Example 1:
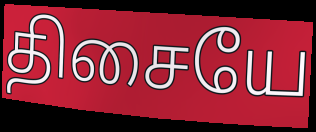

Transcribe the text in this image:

திசையே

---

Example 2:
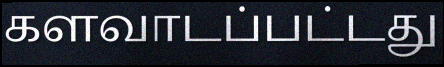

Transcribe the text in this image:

களவாடப்பட்டது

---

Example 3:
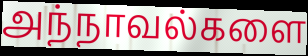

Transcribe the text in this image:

அந்நாவல்களை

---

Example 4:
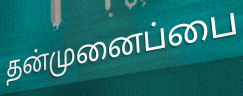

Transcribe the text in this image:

தன்முனைப்பை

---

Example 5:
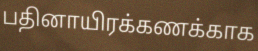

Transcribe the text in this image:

பதினாயிரக்கணக்காக